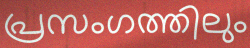
പ്രസംഗത്തിലും